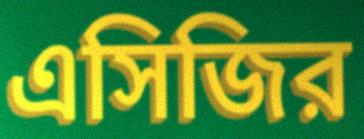
এসিজির